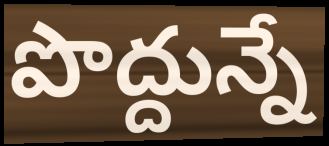
పొద్దున్నే